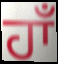
ਹਾਁ